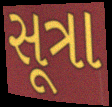
સૂત્રા